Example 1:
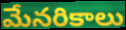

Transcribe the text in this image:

మేనరికాలు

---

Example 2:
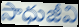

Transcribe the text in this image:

సాధుజీవి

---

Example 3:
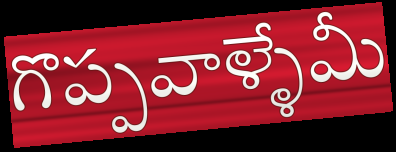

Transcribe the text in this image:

గొప్పవాళ్ళేమీ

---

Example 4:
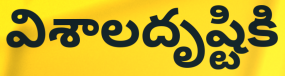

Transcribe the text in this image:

విశాలదృష్టికి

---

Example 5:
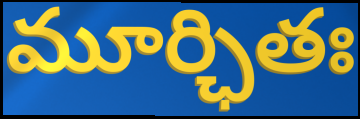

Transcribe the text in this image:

మూర్ఛితః